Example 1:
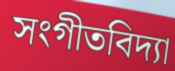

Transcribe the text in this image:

সংগীতবিদ্যা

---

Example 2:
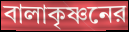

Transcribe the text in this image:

বালাকৃষ্ণনের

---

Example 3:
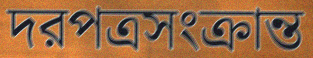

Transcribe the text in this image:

দরপত্রসংক্রান্ত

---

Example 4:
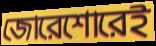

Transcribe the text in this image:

জোরেশোরেই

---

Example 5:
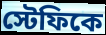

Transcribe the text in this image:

স্টেফিকে